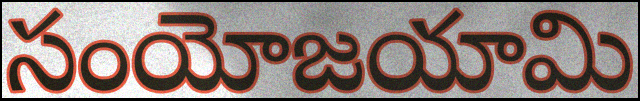
సంయోజయామి